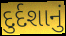
દુર્દશાનું